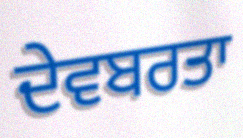
ਦੇਵਬਰਤਾ